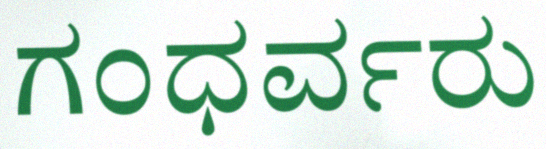
ಗಂಧರ್ವರು